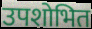
उपशोभित